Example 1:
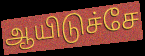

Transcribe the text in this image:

ஆயிடுச்சே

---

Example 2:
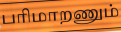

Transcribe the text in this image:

பரிமாறணும்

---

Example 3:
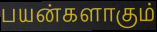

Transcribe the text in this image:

பயன்களாகும்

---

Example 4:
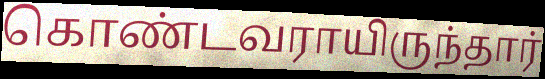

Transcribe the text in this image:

கொண்டவராயிருந்தார்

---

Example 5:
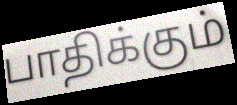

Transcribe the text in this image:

பாதிக்கும்